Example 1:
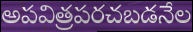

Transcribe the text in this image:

అపవిత్రపరచబడనేల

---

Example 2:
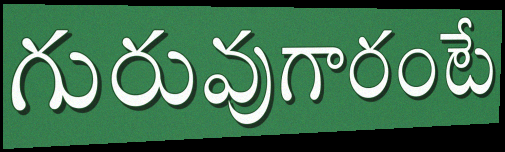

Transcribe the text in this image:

గురువుగారంటే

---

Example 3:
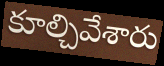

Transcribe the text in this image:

కూల్చివేశారు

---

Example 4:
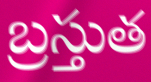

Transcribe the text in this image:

బ్రస్తుత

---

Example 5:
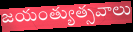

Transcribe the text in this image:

జయంత్యుత్సవాలు